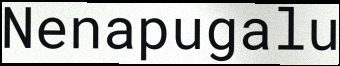
Nenapugalu